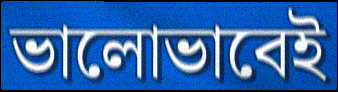
ভালোভাবেই